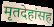
मृतदेहांसह